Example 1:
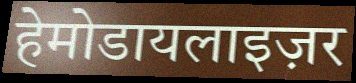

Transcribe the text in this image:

हेमोडायलाइज़र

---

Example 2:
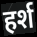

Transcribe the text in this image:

हर्श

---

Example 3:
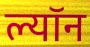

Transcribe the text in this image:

ल्यॉन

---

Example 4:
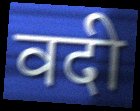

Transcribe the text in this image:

वदी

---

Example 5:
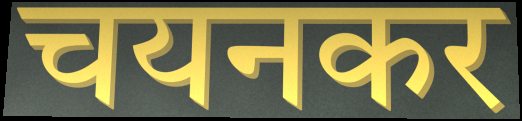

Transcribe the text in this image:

चयनकर